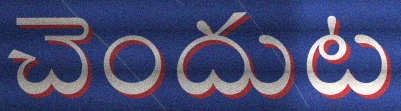
చెందుట